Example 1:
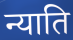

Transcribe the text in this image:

न्याति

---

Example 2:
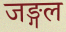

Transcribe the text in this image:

जङ्गल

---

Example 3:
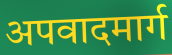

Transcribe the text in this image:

अपवादमार्ग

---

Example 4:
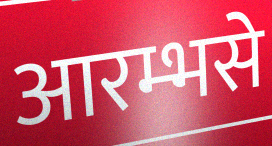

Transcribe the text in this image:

आरम्भसे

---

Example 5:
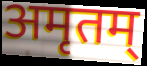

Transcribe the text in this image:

अमृतम्